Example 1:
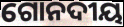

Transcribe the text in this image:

ଗୋନଦୀୟ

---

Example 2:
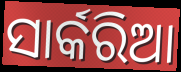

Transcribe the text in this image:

ସାର୍କରିଆ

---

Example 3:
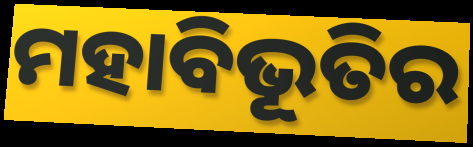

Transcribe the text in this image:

ମହାବିଭୂତିର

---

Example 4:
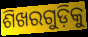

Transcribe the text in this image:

ଶିଖରଗୁଡ଼ିକୁ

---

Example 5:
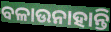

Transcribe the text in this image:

ବଳାଉନାହାନ୍ତି